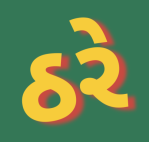
ઠરે